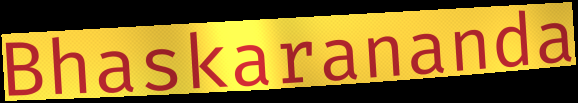
Bhaskarananda